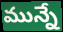
మున్నే